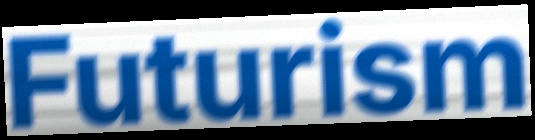
Futurism